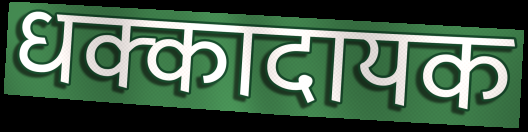
धक्‍कादायक